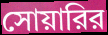
সোয়ারির